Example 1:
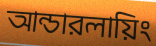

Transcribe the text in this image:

আন্ডারলায়িং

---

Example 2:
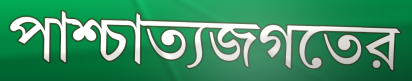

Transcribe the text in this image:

পাশ্চাত্যজগতের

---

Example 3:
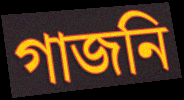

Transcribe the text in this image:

গাজনি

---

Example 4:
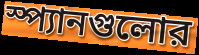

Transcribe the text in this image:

স্প্যানগুলোর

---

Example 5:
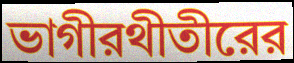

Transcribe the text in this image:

ভাগীরথীতীরের